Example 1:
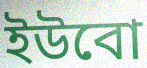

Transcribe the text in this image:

ইউবো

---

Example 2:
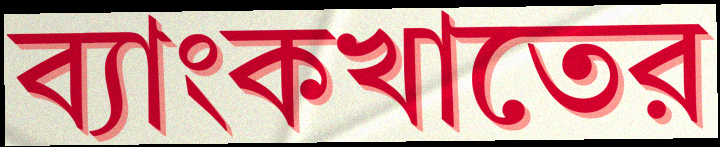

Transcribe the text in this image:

ব্যাংকখাতের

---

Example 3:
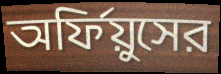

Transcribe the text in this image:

অর্ফিয়ুসের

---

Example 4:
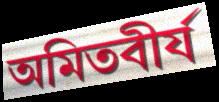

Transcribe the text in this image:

অমিতবীর্য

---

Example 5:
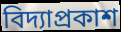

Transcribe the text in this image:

বিদ্যাপ্রকাশ